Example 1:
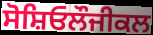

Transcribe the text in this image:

ਸੋਸ਼ਿਓਲੌਜੀਕਲ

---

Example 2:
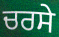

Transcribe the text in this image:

ਚਰਸੇ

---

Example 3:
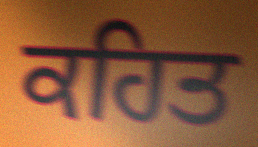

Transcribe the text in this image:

ਕਹਿਤ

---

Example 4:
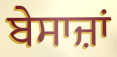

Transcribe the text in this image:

ਬੇਸਾਜ਼ਾਂ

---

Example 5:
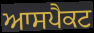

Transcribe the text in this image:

ਆਸਪੈਕਟ